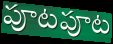
పూటపూట